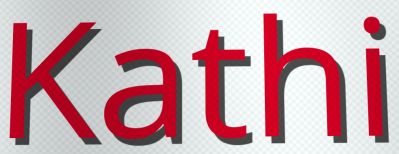
Kathi